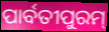
ପାର୍ବତୀପୁରମ୍